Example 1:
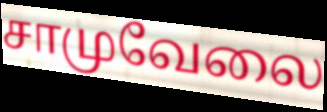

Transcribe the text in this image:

சாமுவேலை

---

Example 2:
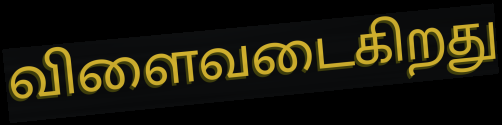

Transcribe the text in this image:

விளைவடைகிறது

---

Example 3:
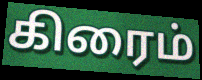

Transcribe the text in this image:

கிரைம்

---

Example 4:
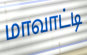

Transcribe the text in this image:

மாவாட்டி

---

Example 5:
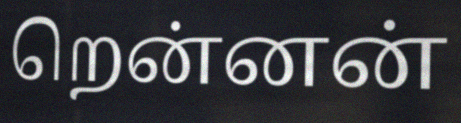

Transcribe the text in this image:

றென்னன்